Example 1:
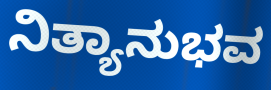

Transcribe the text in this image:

ನಿತ್ಯಾನುಭವ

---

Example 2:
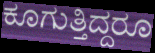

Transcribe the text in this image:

ಕೂಗುತ್ತಿದ್ದರೂ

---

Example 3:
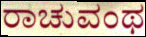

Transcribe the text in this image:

ರಾಚುವಂಥ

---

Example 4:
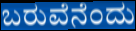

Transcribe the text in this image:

ಬರುವೆನೆಂದು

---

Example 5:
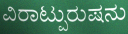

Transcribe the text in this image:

ವಿರಾಟ್ಪುರುಷನು